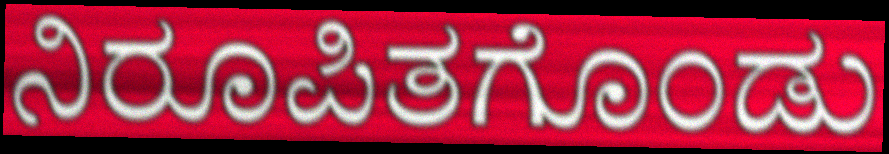
ನಿರೂಪಿತಗೊಂಡು